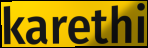
karethi